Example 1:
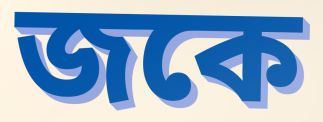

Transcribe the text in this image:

জকে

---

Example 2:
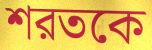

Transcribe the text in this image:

শরতকে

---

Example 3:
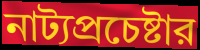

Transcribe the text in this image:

নাট্যপ্রচেষ্টার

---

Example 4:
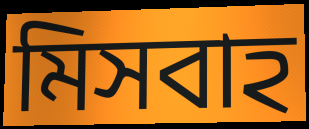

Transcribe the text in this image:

মিসবাহ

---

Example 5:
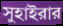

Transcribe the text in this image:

সুহাইরার